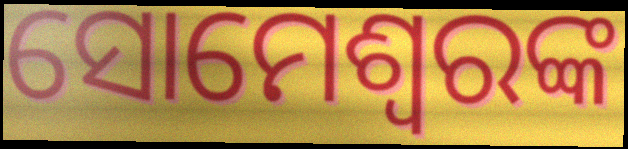
ସୋମେଶ୍ୱରଙ୍କ